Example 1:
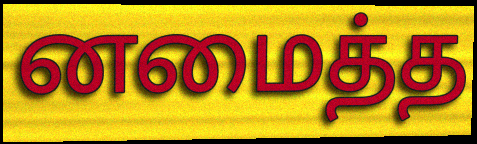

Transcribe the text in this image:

னமைத்த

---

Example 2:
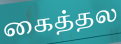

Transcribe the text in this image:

கைத்தல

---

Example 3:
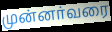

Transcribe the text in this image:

முன்னர்வரை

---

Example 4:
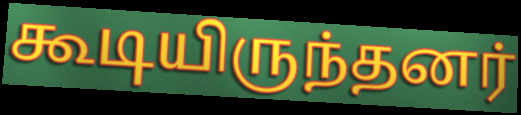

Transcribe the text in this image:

கூடியிருந்தனர்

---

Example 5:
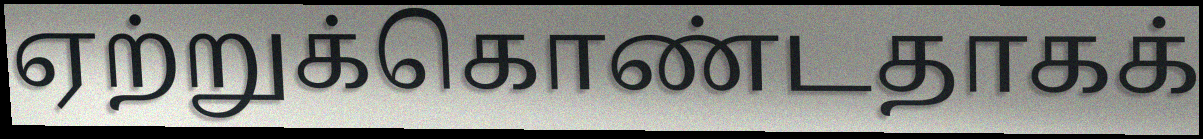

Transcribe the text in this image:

ஏற்றுக்கொண்டதாகக்